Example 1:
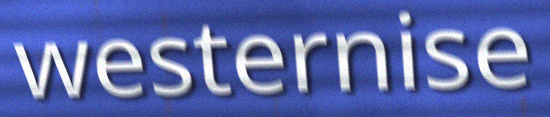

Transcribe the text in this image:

westernise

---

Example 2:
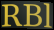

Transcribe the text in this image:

RBl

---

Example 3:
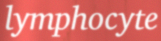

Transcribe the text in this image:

lymphocyte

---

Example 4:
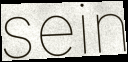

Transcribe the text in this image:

sein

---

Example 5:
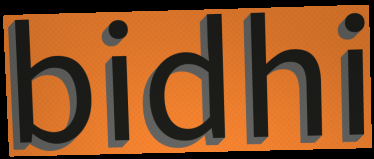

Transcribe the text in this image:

bidhi